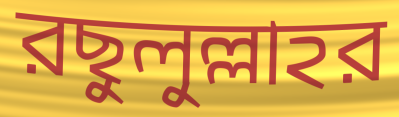
রছুলুল্লাহর